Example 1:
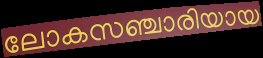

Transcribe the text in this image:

ലോകസഞ്ചാരിയായ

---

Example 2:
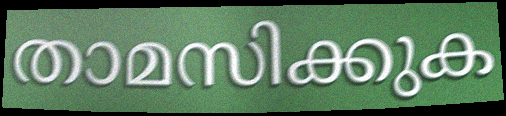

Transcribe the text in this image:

താമസിക്കുക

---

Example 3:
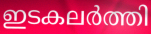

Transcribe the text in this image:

ഇടകലർത്തി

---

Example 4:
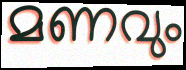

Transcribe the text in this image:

മണവും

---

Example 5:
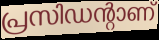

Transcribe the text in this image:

പ്രസിഡന്റാണ്